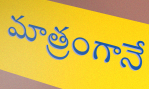
మాత్రంగానే